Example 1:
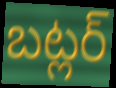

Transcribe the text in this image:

బట్లర్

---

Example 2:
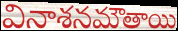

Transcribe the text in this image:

వినాశనమౌతాయి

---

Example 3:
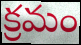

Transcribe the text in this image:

క్రమం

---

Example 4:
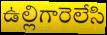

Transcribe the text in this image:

ఉల్లిగారెలేసి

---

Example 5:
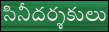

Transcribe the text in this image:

సినీదర్శకులు